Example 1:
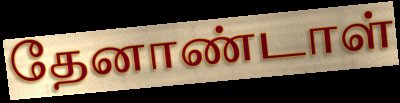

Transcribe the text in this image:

தேனாண்டாள்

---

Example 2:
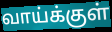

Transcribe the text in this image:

வாய்க்குள்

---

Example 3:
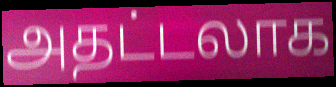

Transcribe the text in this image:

அதட்டலாக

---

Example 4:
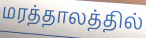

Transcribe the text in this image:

மரத்தாலத்தில்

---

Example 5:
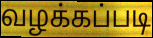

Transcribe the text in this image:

வழக்கப்படி